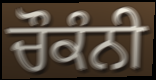
ਚੌਕੰਨੀ